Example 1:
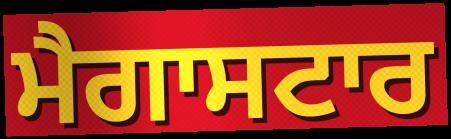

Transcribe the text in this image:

ਮੈਗਾਸਟਾਰ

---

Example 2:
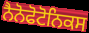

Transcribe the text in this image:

ਨੈਨੋਫੋਟੋਨਿਕਸ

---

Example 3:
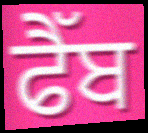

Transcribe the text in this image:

ਫੈੱਬ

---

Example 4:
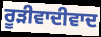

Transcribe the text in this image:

ਰੂੜੀਵਾਦੀਵਾਦ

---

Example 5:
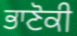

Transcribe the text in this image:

ਭਾਣੋਕੀ